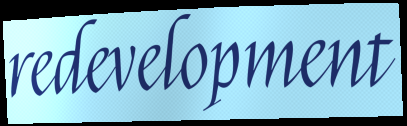
redevelopment